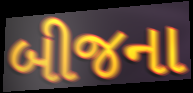
બીજના